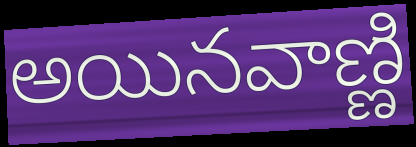
అయినవాణ్ణి